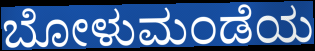
ಬೋಳುಮಂಡೆಯ